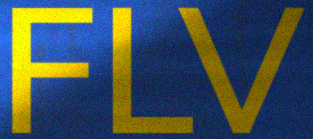
FLV